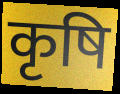
कृषि